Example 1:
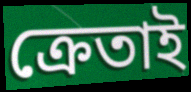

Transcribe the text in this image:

ক্ৰেতাই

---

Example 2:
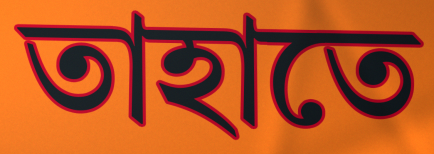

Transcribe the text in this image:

তাহাতে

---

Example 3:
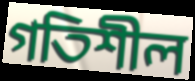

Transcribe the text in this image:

গতিশীল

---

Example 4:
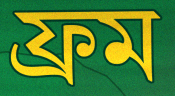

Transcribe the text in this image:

ফ্ৰম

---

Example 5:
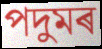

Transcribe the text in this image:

পদুমৰ